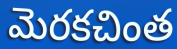
మెరకచింత